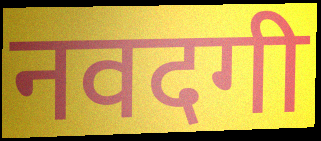
नवदगी